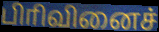
பிரிவினைச்